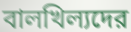
বালখিল্যদের